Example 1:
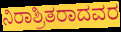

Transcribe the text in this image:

ನಿರಾಶ್ರಿತರಾದವರ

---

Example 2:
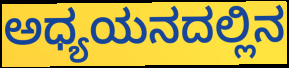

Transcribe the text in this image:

ಅಧ್ಯಯನದಲ್ಲಿನ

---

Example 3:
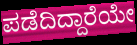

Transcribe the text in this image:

ಪಡೆದಿದ್ದಾರೆಯೇ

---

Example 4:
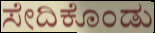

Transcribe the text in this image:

ಸೇದಿಕೊಂಡು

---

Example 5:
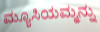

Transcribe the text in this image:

ಮ್ಯೂಸಿಯಮ್ಮನ್ನು